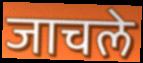
जाचले